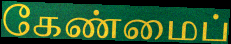
கேண்மைப்